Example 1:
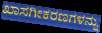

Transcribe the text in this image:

ಖಾಸಗೀಕರಣಗಳನ್ನು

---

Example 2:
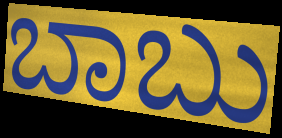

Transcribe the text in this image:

ಬಾಬು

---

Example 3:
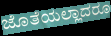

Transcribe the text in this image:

ಜೊತೆಯಲ್ಲಾದರೂ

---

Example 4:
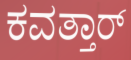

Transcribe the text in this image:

ಕವತ್ತಾರ್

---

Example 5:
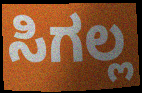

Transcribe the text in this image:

ಸಿಗಲ್ಲ